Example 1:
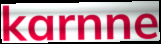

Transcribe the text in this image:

karnne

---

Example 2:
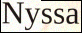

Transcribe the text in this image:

Nyssa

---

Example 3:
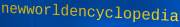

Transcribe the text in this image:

newworldencyclopedia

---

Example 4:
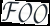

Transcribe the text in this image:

FOO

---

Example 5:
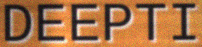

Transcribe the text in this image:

DEEPTI